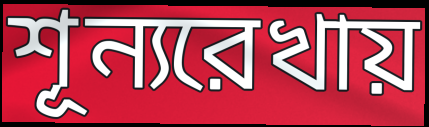
শূন্যরেখায়